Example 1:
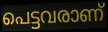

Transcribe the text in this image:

പെട്ടവരാണ്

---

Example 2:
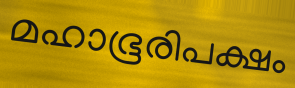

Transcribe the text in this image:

മഹാഭൂരിപക്ഷം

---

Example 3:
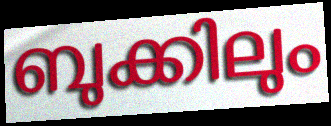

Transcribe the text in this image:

ബുക്കിലും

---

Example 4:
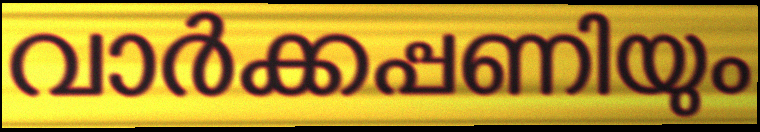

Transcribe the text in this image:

വാർക്കപ്പണിയും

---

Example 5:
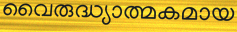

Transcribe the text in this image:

വൈരുദ്ധ്യാത്മകമായ